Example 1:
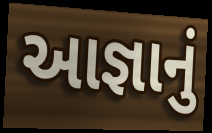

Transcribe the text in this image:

આજ્ઞાનું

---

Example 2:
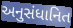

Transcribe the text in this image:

અનુસંધાનિત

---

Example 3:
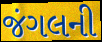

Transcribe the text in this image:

જંગલની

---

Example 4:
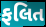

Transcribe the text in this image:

ફલિત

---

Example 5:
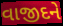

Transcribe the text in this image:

વાજીદને